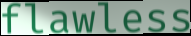
flawless